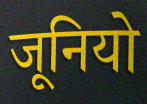
जूनियो